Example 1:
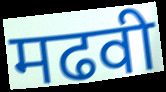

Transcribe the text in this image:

मढवी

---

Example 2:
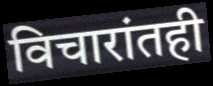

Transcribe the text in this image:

विचारांतही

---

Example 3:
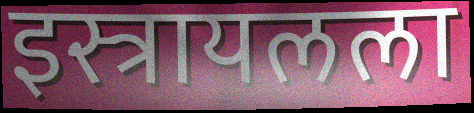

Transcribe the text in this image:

इस्त्रायलला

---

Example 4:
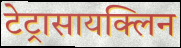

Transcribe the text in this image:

टेट्रासायक्लिन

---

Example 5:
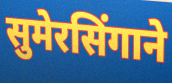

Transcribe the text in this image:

सुमेरसिंगाने